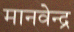
मानवेन्द्र